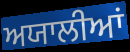
ਅਯਾਲੀਆਂ